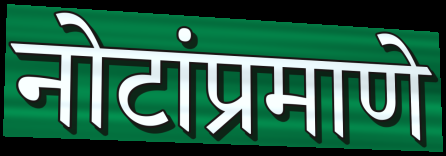
नोटांप्रमाणे